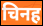
चिनह